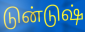
டுன்டுஷ்